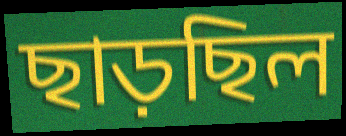
ছাড়ছিল